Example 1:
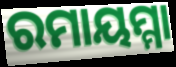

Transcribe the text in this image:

ରମାୟମ୍ମା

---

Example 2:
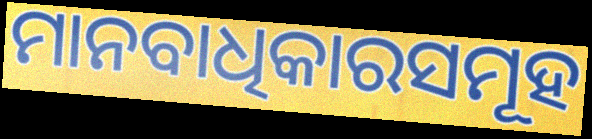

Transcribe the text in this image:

ମାନବାଧିକାରସମୂହ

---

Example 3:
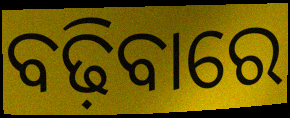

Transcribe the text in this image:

ବଢ଼ିବାରେ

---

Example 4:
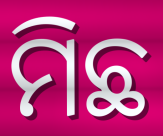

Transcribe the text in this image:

ମିଛ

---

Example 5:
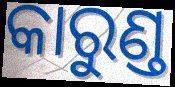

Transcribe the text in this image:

କାରୁଣ୍ଡ